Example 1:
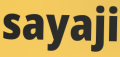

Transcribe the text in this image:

sayaji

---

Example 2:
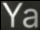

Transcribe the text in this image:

Ya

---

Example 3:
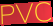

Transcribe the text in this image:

PVC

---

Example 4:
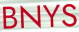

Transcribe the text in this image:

BNYS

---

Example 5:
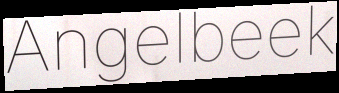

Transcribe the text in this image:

Angelbeek